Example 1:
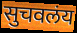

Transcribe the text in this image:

सुचवलंय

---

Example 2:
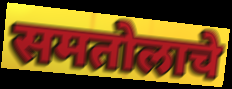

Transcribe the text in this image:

समतोलाचे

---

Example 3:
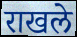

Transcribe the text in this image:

राखले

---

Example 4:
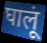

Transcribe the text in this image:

घालूं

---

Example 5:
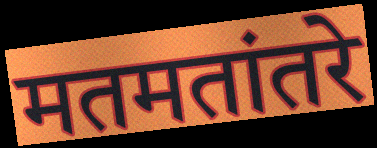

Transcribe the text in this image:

मतमतांतरे